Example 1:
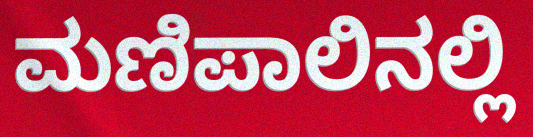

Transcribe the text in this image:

ಮಣಿಪಾಲಿನಲ್ಲಿ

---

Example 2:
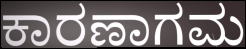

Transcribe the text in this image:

ಕಾರಣಾಗಮ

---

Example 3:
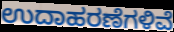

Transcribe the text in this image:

ಉದಾಹರಣೆಗಳಿವೆ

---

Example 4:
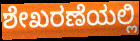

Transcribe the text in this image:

ಶೇಖರಣೆಯಲ್ಲಿ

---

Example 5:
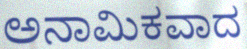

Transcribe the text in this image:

ಅನಾಮಿಕವಾದ